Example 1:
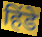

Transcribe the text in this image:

हिंडे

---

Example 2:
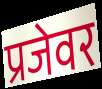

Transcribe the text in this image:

प्रजेवर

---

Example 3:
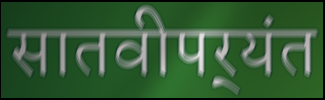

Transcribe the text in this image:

सातवीपर्यंत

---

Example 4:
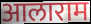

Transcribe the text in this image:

आलाराम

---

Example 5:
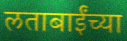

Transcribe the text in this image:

लताबाईंच्या